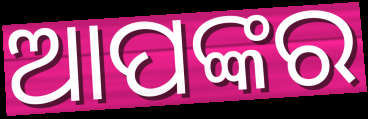
ଆପଙ୍କର